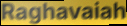
Raghavaiah